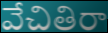
వేచితిరా